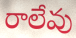
రాలేవు